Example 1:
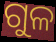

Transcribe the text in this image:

ଗୁଳ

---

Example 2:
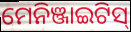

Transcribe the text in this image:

ମେନିଞ୍ଜାଇଟିସ୍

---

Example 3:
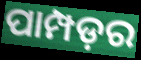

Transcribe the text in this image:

ପାମ୍ପଡ଼ର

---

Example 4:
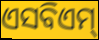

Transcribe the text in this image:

ଏସବିଏମ୍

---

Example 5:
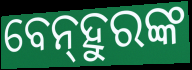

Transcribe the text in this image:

ବେନ୍‍ହୁରଙ୍କ